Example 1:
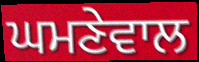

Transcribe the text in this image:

ਘਮਣੇਵਾਲ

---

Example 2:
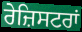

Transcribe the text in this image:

ਰੇਜ਼ਿਸਟਰਾਂ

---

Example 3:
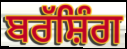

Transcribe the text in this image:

ਬਰੱਸ਼ਿੰਗ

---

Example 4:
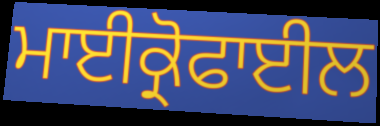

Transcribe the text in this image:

ਮਾਈਕ੍ਰੋਫਾਈਲ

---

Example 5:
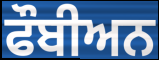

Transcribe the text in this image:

ਫੌਬੀਅਨ